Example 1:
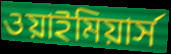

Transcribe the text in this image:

ওয়াইমিয়ার্স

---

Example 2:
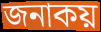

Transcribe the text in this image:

জনাকয়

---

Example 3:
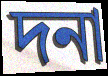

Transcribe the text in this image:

দনা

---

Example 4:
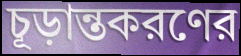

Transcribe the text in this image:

চূড়ান্তকরণের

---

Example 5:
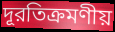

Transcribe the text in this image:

দূরতিক্রমণীয়